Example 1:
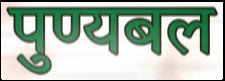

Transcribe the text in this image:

पुण्यबल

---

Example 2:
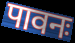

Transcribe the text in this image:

पावनः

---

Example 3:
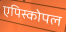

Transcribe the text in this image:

एपिस्कोपल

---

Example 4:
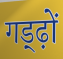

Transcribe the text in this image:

गड्‌ढ़ों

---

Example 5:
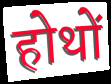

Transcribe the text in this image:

होथों